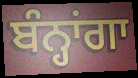
ਬੰਨ੍ਹਾਂਗਾ